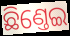
ଛିଣ୍ତେଇ